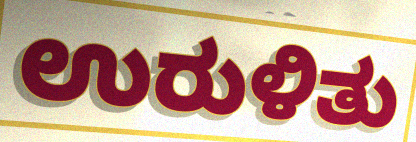
ಉರುಳಿತು